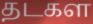
தடகள